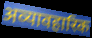
अव्यावहारिक